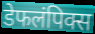
डेफलंपिक्स